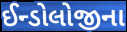
ઈન્ડોલોજીના